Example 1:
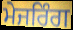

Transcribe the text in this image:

ਮੇਜਰਿੰਗ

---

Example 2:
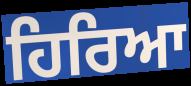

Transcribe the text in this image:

ਹਿਰਿਆ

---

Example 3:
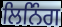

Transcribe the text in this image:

ਲਿਨਿੰਗ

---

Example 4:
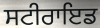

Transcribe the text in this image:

ਸਟੀਰਾਇਡ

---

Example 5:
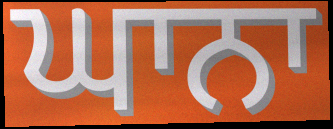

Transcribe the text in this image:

ਘਾਨਾ